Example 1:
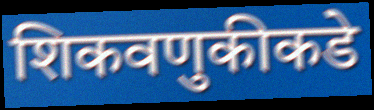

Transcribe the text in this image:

शिकवणुकीकडे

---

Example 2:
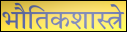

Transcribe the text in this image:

भौतिकशास्त्रे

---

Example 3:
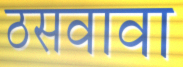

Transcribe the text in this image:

ठसवावा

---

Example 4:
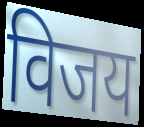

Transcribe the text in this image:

विजय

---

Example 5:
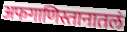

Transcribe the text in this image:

अफगाणिस्तानातलं